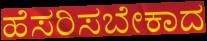
ಹೆಸರಿಸಬೇಕಾದ